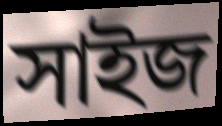
সাইজ